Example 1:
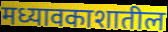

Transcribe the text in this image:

मध्यावकाशातील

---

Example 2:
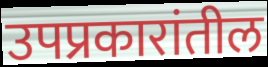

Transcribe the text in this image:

उपप्रकारांतील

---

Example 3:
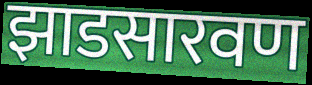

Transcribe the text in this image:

झाडसारवण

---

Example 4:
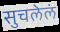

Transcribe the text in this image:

सुचलेलं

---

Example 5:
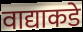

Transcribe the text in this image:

वाद्याकडे